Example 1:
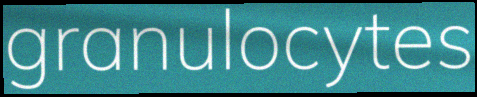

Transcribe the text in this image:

granulocytes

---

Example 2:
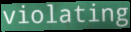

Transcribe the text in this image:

violating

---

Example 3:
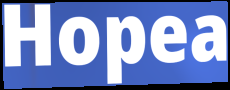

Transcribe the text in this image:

Hopea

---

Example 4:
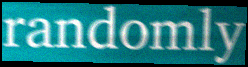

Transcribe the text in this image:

randomly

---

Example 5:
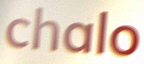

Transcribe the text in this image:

chalo